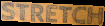
STRETCH